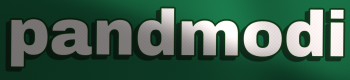
pandmodi